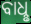
ବାଧୢ